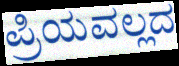
ಪ್ರಿಯವಲ್ಲದ